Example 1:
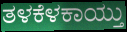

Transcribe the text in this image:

ತಳಕೆಳಕಾಯ್ತು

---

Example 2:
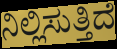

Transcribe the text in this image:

ನಿಲ್ಲಿಸುತ್ತಿದೆ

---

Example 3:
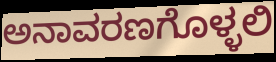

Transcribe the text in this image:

ಅನಾವರಣಗೊಳ್ಳಲಿ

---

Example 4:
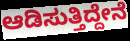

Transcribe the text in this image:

ಆಡಿಸುತ್ತಿದ್ದೇನೆ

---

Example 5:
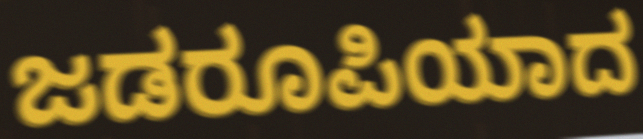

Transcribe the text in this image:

ಜಡರೂಪಿಯಾದ